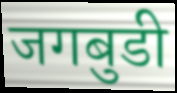
जगबुडी